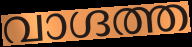
വാഗ്ദത്ത